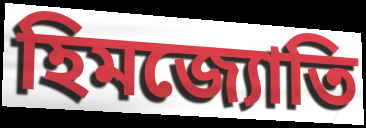
হিমজ্যোতি